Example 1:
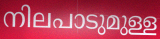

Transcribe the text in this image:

നിലപാടുമുള്ള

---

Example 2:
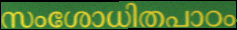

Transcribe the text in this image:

സംശോധിതപാഠം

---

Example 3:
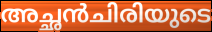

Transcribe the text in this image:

അച്ഛൻചിരിയുടെ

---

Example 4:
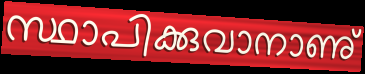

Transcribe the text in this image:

സ്ഥാപിക്കുവാനാണു്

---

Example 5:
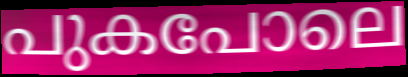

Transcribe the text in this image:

പുകപോലെ